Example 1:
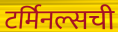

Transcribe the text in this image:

टर्मिनल्सची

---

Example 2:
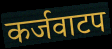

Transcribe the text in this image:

कर्जवाटप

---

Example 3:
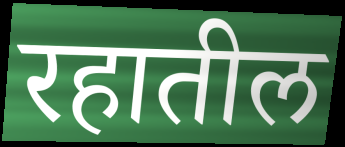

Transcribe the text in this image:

रहातील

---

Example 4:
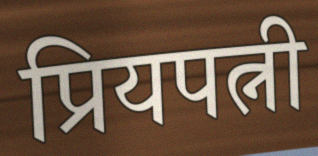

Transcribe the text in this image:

प्रियपत्नी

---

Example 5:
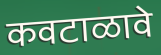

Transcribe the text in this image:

कवटाळावे